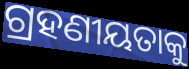
ଗ୍ରହଣୀୟତାକୁ